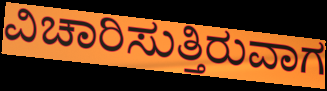
ವಿಚಾರಿಸುತ್ತಿರುವಾಗ